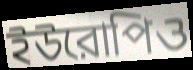
ইউরোপিও